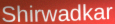
Shirwadkar